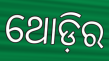
ଥୋଡ଼ିର